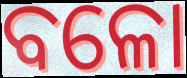
ବଳୋ